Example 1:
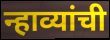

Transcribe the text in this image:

न्हाव्यांची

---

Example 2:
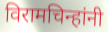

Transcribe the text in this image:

विरामचिन्हांनी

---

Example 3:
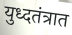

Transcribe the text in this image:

युध्दतंत्रात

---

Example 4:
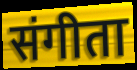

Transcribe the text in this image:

संगीता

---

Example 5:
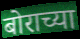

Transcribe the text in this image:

बोराच्या